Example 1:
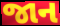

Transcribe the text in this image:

જાન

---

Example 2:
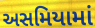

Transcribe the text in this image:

અસમિયામાં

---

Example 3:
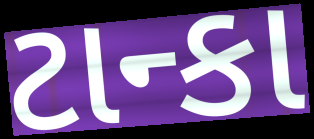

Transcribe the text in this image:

ટાન્કા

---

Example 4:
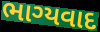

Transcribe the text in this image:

ભાગ્યવાદ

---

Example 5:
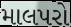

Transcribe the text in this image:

માલપરો